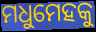
ମଧୁମେହକୁ